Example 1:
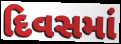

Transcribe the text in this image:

દિવસમાં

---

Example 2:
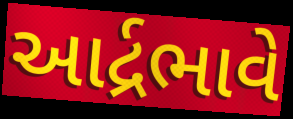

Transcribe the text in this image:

આર્દ્રભાવે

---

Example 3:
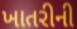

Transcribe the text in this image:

ખાતરીની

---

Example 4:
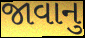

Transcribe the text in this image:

જાવાનુ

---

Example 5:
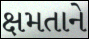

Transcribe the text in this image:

ક્ષમતાને